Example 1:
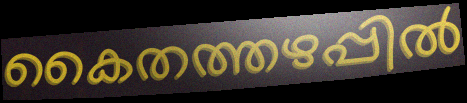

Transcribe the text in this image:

കൈതത്തഴപ്പിൽ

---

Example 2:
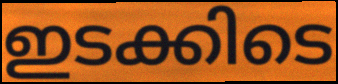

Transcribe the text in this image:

ഇടക്കിടെ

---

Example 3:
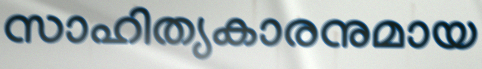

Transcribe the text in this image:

സാഹിത്യകാരനുമായ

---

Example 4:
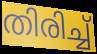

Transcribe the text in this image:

തിരിച്ച്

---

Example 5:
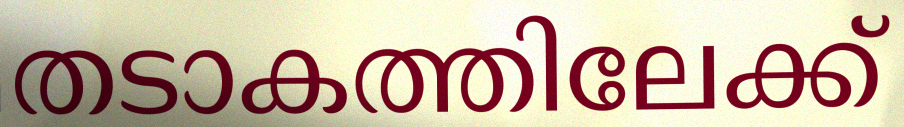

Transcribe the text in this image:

തടാകത്തിലേക്ക്